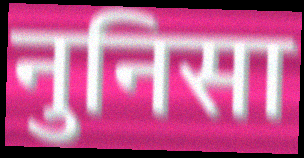
नुनिसा